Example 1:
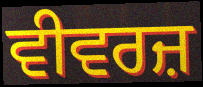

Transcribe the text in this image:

ਵੀਵਰਜ਼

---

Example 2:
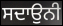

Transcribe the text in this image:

ਸਦਾਉਨੀ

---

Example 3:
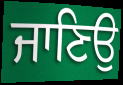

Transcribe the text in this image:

ਜਾਣਿਉ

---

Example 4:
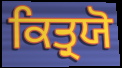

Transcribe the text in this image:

ਕਿਤ੍ਰਯੋ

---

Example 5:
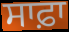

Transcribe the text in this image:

ਸਾਫ਼ਾ